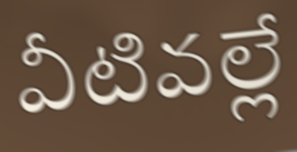
వీటివల్లే